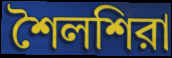
শৈলশিরা